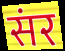
संर